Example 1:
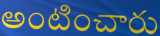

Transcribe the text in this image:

అంటించారు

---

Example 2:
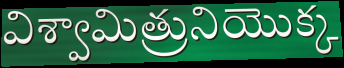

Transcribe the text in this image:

విశ్వామిత్రునియొక్క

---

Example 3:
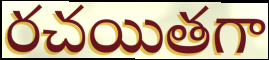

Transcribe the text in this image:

రచయితగా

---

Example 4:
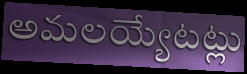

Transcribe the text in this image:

అమలయ్యేటట్లు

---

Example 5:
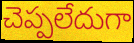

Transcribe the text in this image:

చెప్పలేదుగా